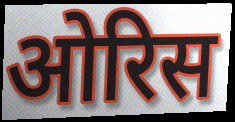
ओरिस